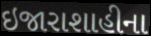
ઇજારાશાહીના